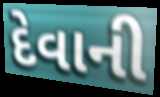
દેવાની